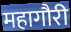
महागौरी